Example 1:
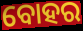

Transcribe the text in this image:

ବୋହର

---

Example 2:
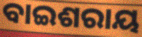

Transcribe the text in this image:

ବାଇଶରାୟ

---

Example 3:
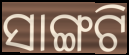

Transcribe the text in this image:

ସାଙ୍ଗଟି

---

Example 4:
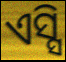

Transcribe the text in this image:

ଏସ୍ସି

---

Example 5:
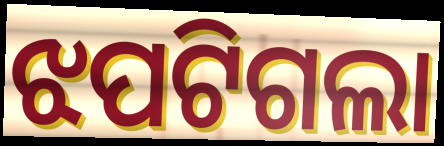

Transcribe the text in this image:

ଝପଟିଗଲା